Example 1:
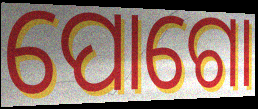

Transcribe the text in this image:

ପୋଗୋ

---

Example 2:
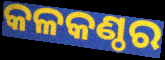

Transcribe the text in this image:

କଳକଣ୍ଠର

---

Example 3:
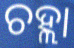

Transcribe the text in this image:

ଚହ୍ଲା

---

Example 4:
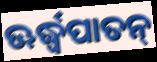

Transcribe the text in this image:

ଊର୍ଦ୍ଧ୍ବପାତନ୍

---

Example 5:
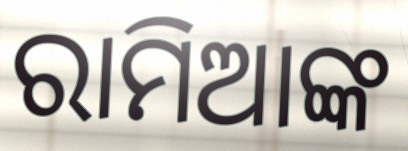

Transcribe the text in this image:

ରାମିଆଙ୍କ